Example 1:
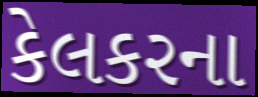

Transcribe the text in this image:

કેલકરના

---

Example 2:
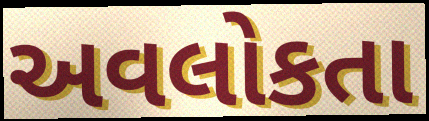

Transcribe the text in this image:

અવલોકતા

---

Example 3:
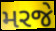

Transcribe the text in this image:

મરજે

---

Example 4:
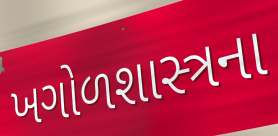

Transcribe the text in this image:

ખગોળશાસ્ત્રના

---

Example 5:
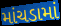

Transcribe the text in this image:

માંચડામાં